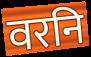
वरनि